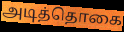
அடித்தொகை